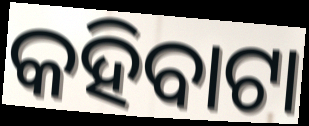
କହିବାଟା